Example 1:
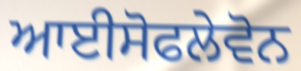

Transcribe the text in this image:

ਆਈਸੋਫਲੇਵੋਨ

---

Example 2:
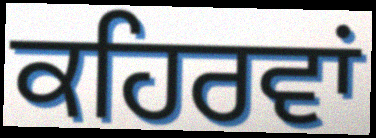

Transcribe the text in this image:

ਕਹਿਰਵਾਂ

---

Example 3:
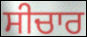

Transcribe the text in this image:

ਸੀਚਾਰ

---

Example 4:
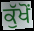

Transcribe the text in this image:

ਕੁੱਖੋਂ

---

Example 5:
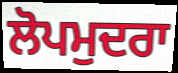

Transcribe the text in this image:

ਲੋਪਮੁਦਰਾ